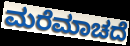
ಮರೆಮಾಚದೆ